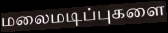
மலைமடிப்புகளை